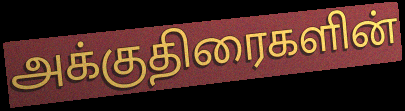
அக்குதிரைகளின்